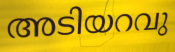
അടിയറവു